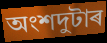
অংশদুটাৰ